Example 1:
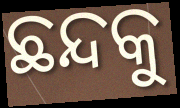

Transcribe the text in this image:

ଛନ୍ଦକୁ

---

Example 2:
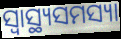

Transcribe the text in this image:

ସ୍ୱାସ୍ଥ୍ୟସମସ୍ୟା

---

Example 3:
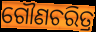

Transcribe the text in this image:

ଗୌଣଚରିତ୍ର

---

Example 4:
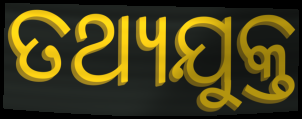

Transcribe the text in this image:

ତଥ୍ୟଯୁକ୍ତ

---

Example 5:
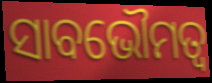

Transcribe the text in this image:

ସାବଭୌମତ୍ୱ